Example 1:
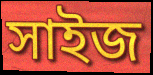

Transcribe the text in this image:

সাইজ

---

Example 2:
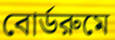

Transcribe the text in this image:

বোর্ডরুমে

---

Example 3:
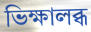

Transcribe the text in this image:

ভিক্ষালব্ধ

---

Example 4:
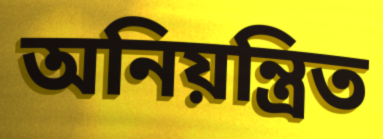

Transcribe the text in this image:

অনিয়ন্ত্রিত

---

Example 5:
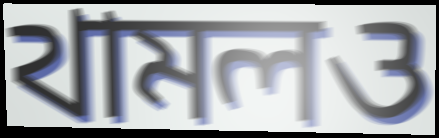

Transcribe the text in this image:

থামলও